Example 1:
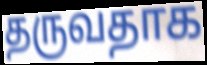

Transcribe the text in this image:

தருவதாக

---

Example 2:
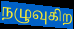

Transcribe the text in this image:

நழுவுகிற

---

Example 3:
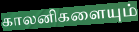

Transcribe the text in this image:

காலனிகளையும்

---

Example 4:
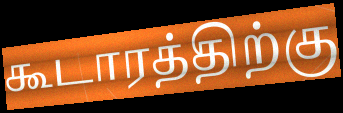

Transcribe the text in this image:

கூடாரத்திற்கு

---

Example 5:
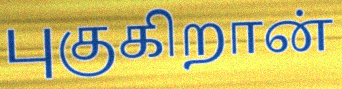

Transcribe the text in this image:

புகுகிறான்